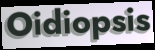
Oidiopsis